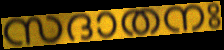
സദാതനഃ